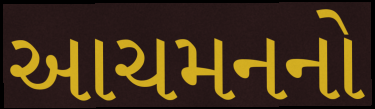
આચમનનો